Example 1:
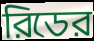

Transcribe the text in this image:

রিডের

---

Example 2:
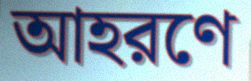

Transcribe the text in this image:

আহরণে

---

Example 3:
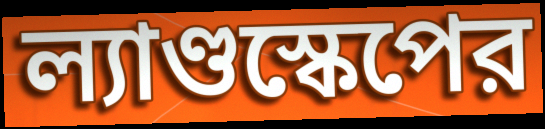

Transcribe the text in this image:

ল্যাণ্ডস্কেপের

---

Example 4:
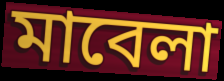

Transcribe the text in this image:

মাবেলা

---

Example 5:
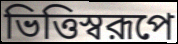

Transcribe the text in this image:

ভিত্তিস্বরূপে